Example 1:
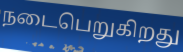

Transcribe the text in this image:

நடைபெறுகிறது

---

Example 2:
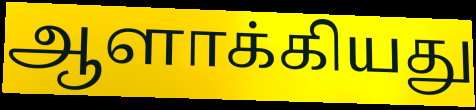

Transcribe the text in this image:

ஆளாக்கியது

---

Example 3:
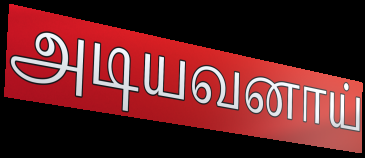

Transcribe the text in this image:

அடியவனாய்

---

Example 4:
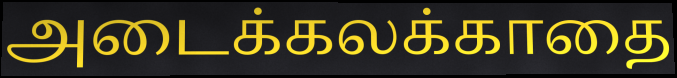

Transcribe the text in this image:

அடைக்கலக்காதை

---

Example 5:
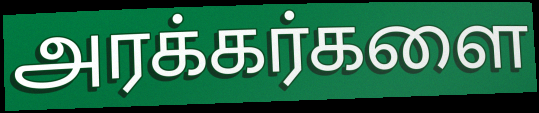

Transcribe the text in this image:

அரக்கர்களை